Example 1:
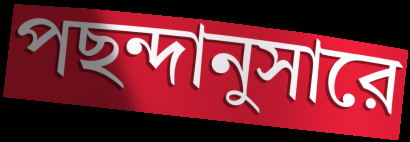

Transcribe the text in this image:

পছন্দানুসারে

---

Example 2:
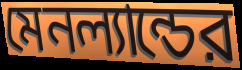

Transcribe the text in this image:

মেনল্যান্ডের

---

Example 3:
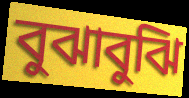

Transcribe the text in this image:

বুঝাবুঝি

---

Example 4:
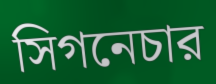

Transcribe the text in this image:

সিগনেচার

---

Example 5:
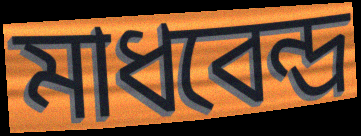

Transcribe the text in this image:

মাধবেন্দ্র